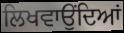
ਲਿਖਵਾਉਂਦਿਆਂ